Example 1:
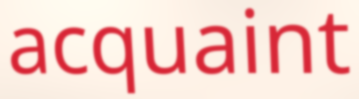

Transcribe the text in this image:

acquaint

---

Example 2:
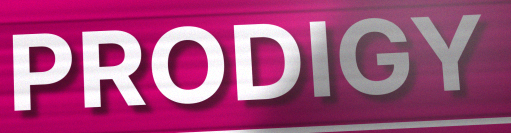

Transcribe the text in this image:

PRODIGY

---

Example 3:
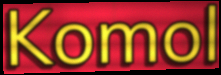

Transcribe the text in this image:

Komol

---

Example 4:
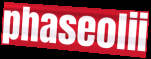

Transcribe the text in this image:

phaseolii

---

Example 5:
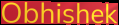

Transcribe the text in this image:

Obhishek